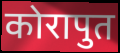
कोरापुत